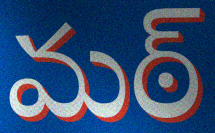
మఠ్